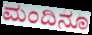
ಮಂದಿನೂ